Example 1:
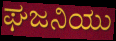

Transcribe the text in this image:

ಘಜನಿಯು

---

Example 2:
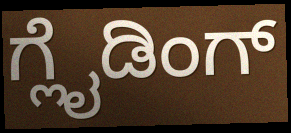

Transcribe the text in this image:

ಗ್ಲೈಡಿಂಗ್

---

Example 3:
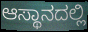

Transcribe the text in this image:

ಆಸ್ಥಾನದಲ್ಲಿ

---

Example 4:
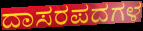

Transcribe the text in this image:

ದಾಸರಪದಗಳ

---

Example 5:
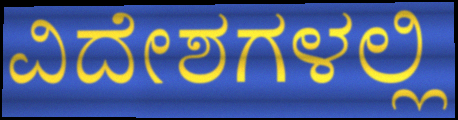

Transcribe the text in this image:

ವಿದೇಶಗಳಲ್ಲಿ